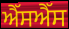
ਐੱਸਐੱਸ